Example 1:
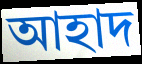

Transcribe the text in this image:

আহাদ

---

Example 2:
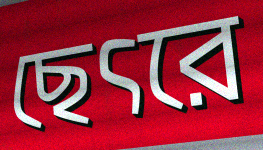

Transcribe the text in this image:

ছেৎরে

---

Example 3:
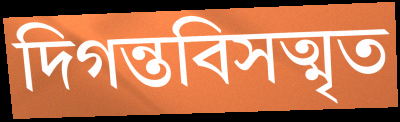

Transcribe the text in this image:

দিগন্তবিসত্মৃত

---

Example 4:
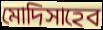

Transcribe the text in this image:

মোদিসাহেব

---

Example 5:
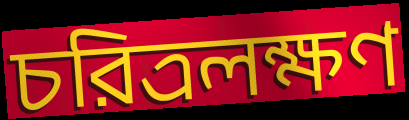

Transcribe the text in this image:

চরিত্রলক্ষণ